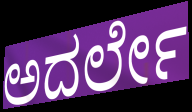
ಅದರ್ಲೇ